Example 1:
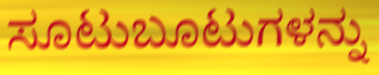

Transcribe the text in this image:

ಸೂಟುಬೂಟುಗಳನ್ನು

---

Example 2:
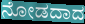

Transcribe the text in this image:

ನೋಡದಾದ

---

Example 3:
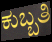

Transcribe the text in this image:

ಕುಬ್ಬತಿ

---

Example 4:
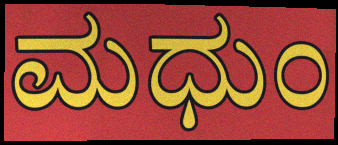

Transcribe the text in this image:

ಮಧುಂ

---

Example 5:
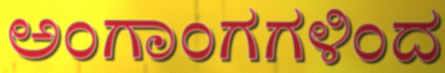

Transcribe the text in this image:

ಅಂಗಾಂಗಗಳಿಂದ